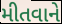
મીતવાને